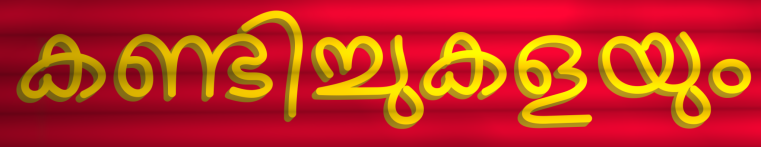
കണ്ടിച്ചുകളയും